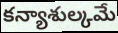
కన్యాశుల్కమే